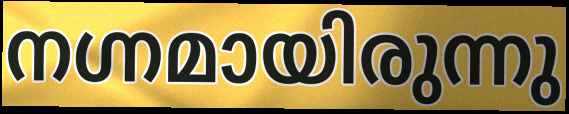
നഗ്നമായിരുന്നു